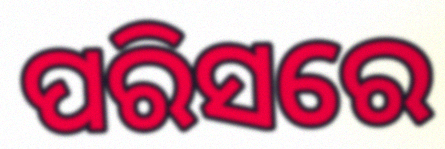
ପରିସରେ